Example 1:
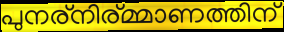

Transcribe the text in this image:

പുനര്നിര്മ്മാണത്തിന്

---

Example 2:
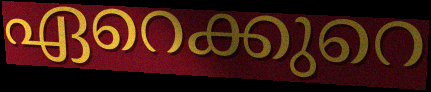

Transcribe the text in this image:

ഏറെക്കുറെ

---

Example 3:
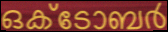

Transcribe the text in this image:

ഒക്ടോബർ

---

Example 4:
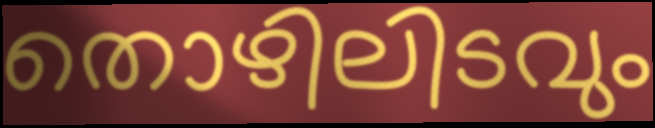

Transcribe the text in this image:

തൊഴിലിടവും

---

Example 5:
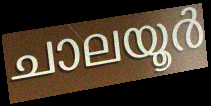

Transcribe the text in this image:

ചാലയൂർ